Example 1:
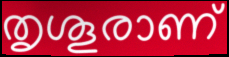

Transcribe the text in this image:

തൃശൂരാണ്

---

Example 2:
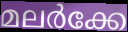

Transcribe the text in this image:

മലർക്കേ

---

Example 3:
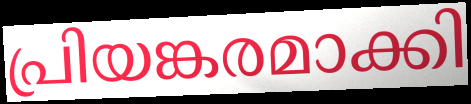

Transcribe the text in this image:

പ്രിയങ്കരമാക്കി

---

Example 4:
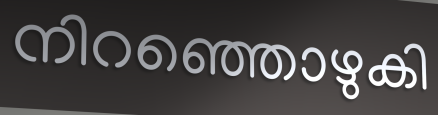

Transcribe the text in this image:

നിറഞ്ഞൊഴുകി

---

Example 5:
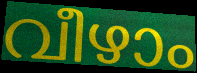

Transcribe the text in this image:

വീഴാം